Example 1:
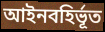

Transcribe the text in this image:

আইনবহির্ভূত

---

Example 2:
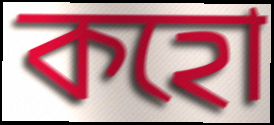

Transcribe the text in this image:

কহো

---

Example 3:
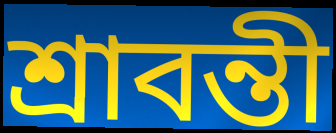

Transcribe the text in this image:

শ্রাবন্তী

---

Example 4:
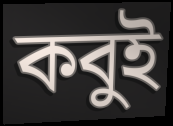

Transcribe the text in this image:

কবুই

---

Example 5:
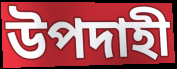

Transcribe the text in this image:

উপদাহী